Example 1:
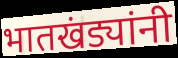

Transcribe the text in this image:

भातखंड्यांनी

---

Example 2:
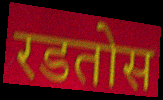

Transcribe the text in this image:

रडतोस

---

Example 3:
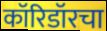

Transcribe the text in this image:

कॉरिडॉरचा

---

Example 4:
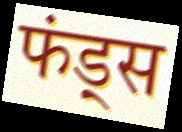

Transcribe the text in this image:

फंड्‌स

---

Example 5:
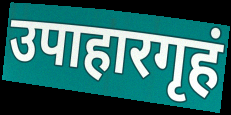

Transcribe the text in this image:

उपाहारगृहं